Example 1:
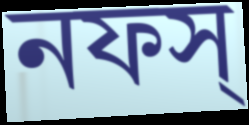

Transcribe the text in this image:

নফস্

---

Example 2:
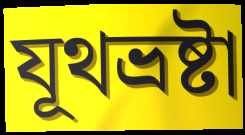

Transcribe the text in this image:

যূথভ্রষ্টা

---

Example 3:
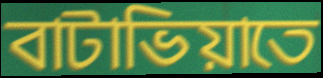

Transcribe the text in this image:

বাটাভিয়াতে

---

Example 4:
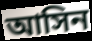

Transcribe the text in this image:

আসিন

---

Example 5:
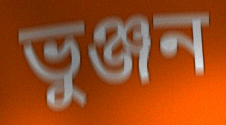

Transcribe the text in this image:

ভুঞ্জন